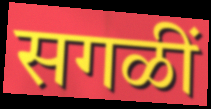
सगळीं